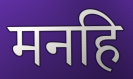
मनहि